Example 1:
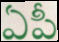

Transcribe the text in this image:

ఏపీ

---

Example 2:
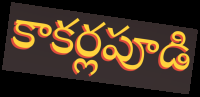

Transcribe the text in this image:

కాకర్లపూడి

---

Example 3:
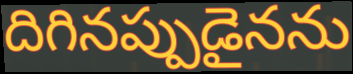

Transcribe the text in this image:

దిగినప్పుడైనను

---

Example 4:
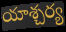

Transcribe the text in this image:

యాశ్చర్య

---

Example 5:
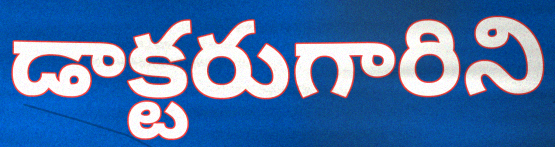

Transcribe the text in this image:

డాక్టరుగారిని